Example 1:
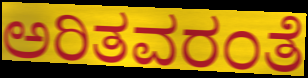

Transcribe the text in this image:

ಅರಿತವರಂತೆ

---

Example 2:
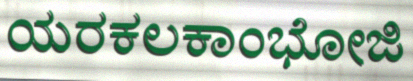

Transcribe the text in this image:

ಯರಕಲಕಾಂಭೋಜಿ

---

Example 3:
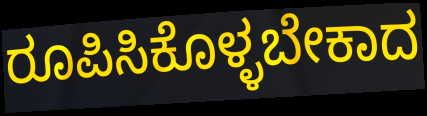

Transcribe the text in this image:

ರೂಪಿಸಿಕೊಳ್ಳಬೇಕಾದ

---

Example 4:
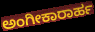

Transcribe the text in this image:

ಅಂಗೀಕಾರಾರ್ಹ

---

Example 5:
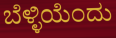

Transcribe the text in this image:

ಬೆಳ್ಳಿಯೆಂದು